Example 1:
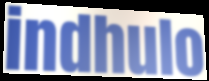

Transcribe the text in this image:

indhulo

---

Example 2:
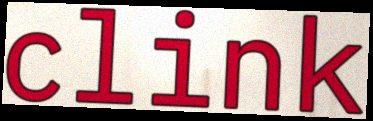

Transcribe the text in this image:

clink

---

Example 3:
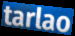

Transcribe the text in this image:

tarlao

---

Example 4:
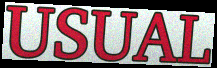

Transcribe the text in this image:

USUAL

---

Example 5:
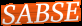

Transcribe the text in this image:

SABSE